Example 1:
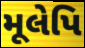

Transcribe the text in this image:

મૂલેપિ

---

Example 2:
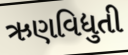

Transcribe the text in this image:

ઋણવિદ્યુતી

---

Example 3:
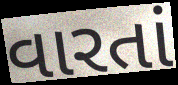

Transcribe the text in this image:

વારતાં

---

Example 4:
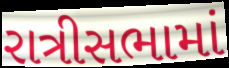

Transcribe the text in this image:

રાત્રીસભામાં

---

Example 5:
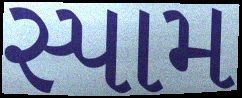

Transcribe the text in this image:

સ્પામ